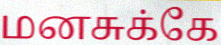
மனசுக்கே